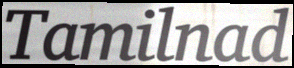
Tamilnad